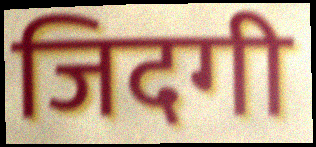
जिदगी